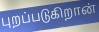
புறப்படுகிறான்